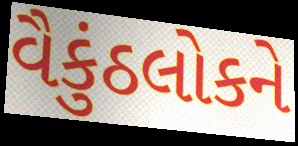
વૈકુંઠલોકને